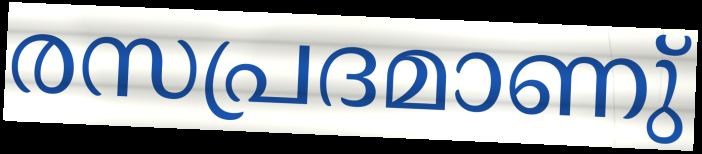
രസപ്രദമാണു്